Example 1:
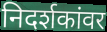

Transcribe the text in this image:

निदर्शकांवर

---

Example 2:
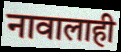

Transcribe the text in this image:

नावालाही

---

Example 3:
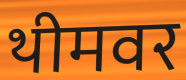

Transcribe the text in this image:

थीमवर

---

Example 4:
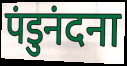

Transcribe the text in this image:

पंडुनंदना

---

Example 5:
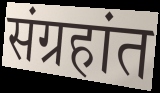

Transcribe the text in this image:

संग्रहांत